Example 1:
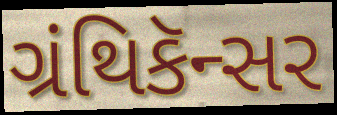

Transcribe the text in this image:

ગ્રંથિકૅન્સર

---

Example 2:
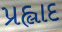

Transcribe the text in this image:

પ્રહ્લાદ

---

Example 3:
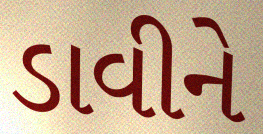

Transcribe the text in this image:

ડાવીને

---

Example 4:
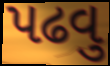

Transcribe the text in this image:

પઢવુ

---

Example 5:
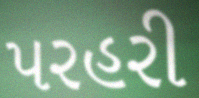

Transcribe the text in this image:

પરહરી